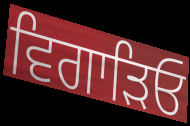
ਵਿਗਾੜਿਓ